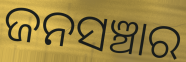
ଜନସଞ୍ଚାର